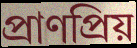
প্রাণপ্রিয়